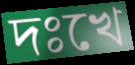
দঃখে